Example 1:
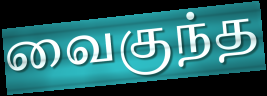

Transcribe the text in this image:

வைகுந்த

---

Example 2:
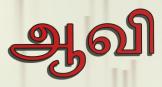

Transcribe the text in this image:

ஆவி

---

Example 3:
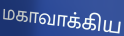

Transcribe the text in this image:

மகாவாக்கிய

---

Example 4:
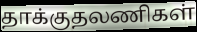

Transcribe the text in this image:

தாக்குதலணிகள்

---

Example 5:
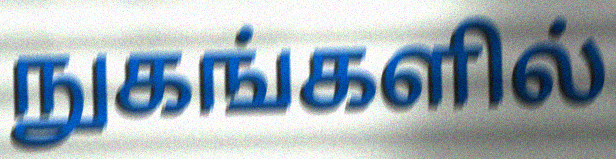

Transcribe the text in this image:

நுகங்களில்